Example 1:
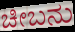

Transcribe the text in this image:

ಚೀಬನು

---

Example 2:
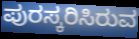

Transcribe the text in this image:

ಪುರಸ್ಕರಿಸಿರುವ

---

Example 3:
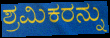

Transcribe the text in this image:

ಶ್ರಮಿಕರನ್ನು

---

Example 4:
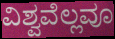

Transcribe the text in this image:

ವಿಶ್ವವೆಲ್ಲವೂ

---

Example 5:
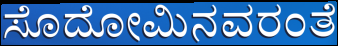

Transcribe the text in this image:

ಸೊದೋಮಿನವರಂತೆ